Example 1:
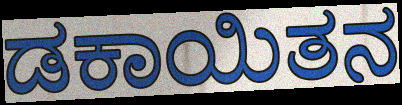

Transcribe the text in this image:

ಡಕಾಯಿತನ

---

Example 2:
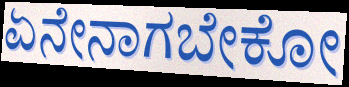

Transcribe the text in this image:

ಏನೇನಾಗಬೇಕೋ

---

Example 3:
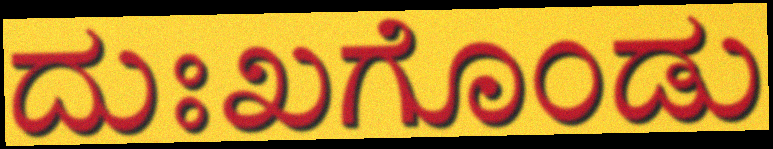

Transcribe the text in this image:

ದುಃಖಗೊಂಡು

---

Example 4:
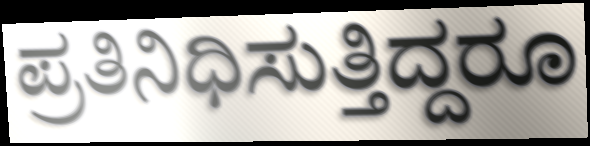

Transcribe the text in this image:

ಪ್ರತಿನಿಧಿಸುತ್ತಿದ್ದರೂ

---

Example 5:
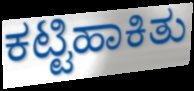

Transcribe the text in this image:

ಕಟ್ಟಿಹಾಕಿತು